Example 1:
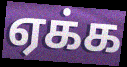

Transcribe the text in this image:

ஏக்க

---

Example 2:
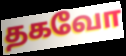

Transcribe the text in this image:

தகவோ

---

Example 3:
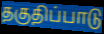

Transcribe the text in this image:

தகுதிப்பாடு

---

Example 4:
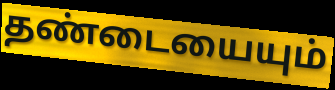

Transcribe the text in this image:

தண்டையையும்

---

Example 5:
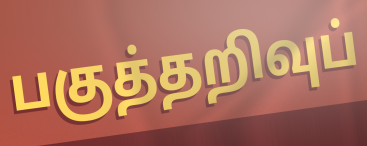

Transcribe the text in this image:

பகுத்தறிவுப்